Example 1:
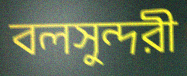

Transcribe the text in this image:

বলসুন্দরী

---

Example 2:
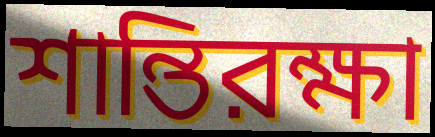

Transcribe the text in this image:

শান্তিরক্ষা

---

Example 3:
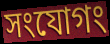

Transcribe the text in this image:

সংযোগং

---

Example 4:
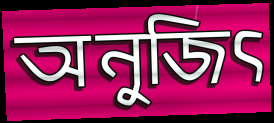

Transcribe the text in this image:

অনুজিৎ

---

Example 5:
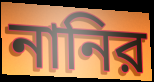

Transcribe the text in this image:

নানির